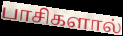
பாசிகளால்